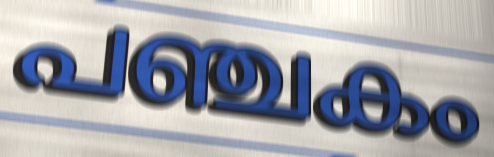
പഞ്ചകം